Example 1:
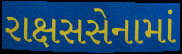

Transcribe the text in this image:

રાક્ષસસેનામાં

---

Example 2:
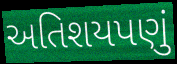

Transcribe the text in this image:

અતિશયપણું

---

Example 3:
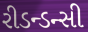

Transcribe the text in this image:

રીડન્ડન્સી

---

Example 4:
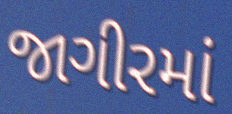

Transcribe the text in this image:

જાગીરમાં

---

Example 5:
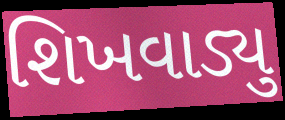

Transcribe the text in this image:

શિખવાડ્યુ